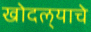
खोदल्याचे